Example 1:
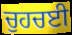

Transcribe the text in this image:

ਚੁਹਚਈ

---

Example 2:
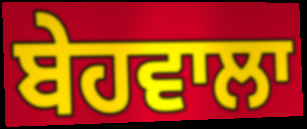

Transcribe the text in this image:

ਬੇਹਵਾਲਾ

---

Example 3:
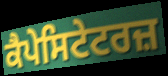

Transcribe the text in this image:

ਕੈਪੇਸਿਟੇਟਰਜ਼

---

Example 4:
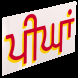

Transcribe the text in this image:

ਪੀਘਾਂ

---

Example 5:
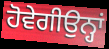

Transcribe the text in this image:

ਹੋਵੇਗੀਉਨ੍ਹਾਂ